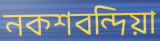
নকশবন্দিয়া